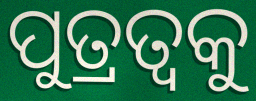
ପୁତ୍ରତ୍ଵକୁ